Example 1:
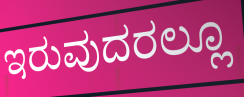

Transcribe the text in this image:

ಇರುವುದರಲ್ಲೂ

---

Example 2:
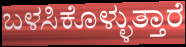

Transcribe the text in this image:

ಬಳಸಿಕೊಳ್ಳುತ್ತಾರೆ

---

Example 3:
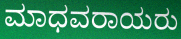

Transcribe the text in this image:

ಮಾಧವರಾಯರು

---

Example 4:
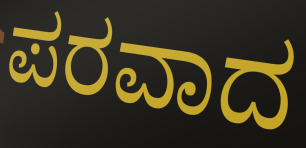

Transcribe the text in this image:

ಪರವಾದ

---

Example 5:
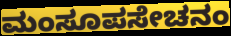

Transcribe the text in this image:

ಮಂಸೂಪಸೇಚನಂ